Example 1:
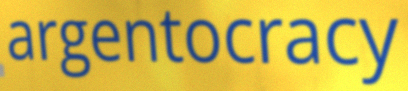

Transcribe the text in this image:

argentocracy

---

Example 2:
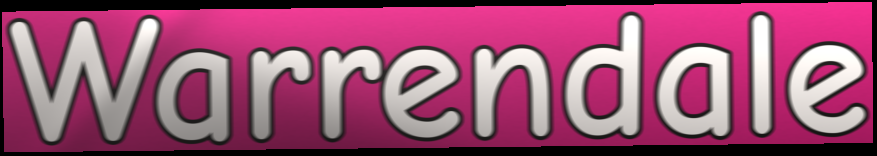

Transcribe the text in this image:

Warrendale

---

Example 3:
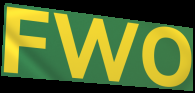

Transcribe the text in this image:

FWO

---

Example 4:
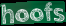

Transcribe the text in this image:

hoofs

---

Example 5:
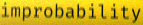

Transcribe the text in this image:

improbability